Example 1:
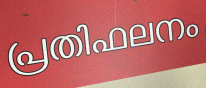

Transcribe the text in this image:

പ്രതിഫലനം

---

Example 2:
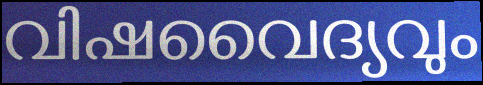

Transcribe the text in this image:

വിഷവൈദ്യവും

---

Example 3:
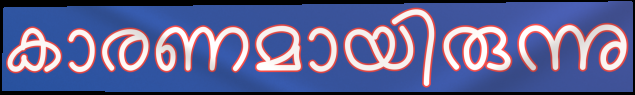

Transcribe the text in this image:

കാരണമായിരുന്നു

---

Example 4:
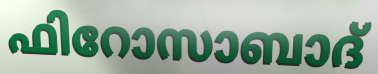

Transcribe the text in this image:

ഫിറോസാബാദ്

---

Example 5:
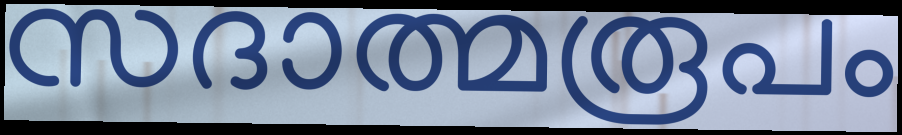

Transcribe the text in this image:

സദാത്മരൂപം